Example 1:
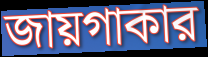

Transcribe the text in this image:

জায়গাকার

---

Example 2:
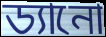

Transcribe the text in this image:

ড্যানো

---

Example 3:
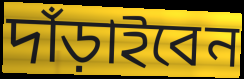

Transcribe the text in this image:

দাঁড়াইবেন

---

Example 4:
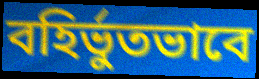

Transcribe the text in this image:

বহির্ভুতভাবে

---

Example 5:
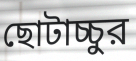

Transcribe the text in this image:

ছোটাচ্চুর